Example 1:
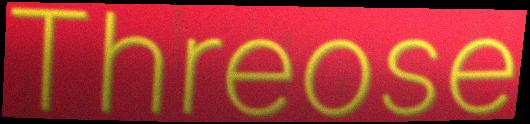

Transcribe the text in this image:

Threose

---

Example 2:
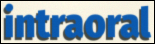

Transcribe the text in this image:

intraoral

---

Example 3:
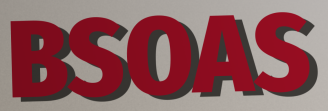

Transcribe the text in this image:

BSOAS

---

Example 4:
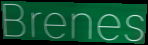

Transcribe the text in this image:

Brenes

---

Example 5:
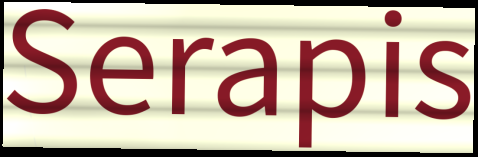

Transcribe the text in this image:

Serapis